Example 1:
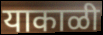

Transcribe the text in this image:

याकाळी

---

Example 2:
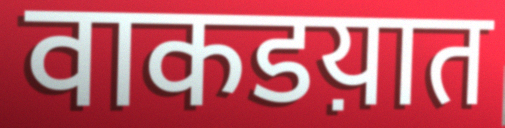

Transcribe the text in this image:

वाकडय़ात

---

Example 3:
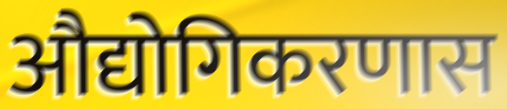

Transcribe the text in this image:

औद्योगिकरणास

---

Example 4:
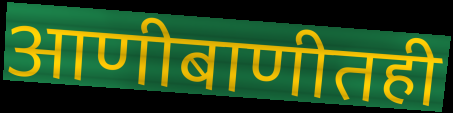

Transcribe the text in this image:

आणीबाणीतही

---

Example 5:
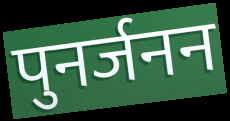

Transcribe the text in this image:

पुनर्जनन